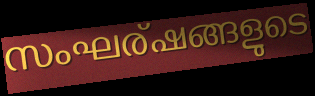
സംഘര്ഷങ്ങളുടെ